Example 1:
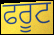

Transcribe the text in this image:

ਫਰੂਟ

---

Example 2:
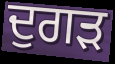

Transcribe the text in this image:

ਦੁਗੜ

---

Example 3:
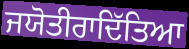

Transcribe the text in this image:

ਜਯੋਤੀਰਾਦਿੱਤਿਆ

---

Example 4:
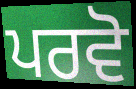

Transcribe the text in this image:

ਪਰਵੋ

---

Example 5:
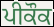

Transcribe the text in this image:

ਪੀਕੌਕ